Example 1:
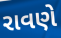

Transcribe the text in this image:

રાવણે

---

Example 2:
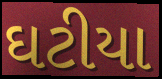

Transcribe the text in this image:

ઘટીયા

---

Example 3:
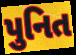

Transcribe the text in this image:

પુનિત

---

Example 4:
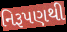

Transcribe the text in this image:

નિરૂપણથી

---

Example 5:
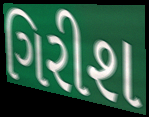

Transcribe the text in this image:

ગિરીશ